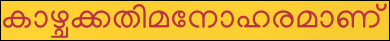
കാഴ്ചക്കതിമനോഹരമാണ്